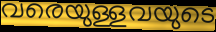
വരെയുള്ളവയുടെ